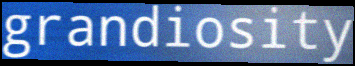
grandiosity